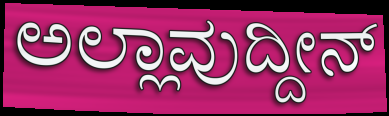
ಅಲ್ಲಾವುದ್ದೀನ್